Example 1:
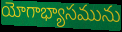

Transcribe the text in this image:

యోగాభ్యాసమును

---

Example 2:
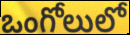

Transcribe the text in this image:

ఒంగోలులో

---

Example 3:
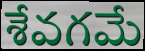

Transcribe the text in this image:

శేవగమే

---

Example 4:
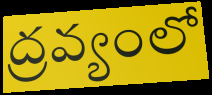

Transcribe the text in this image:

ద్రవ్యంలో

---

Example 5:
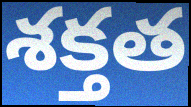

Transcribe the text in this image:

శక్తత